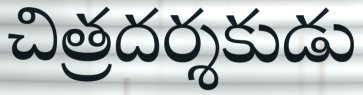
చిత్రదర్శకుడు